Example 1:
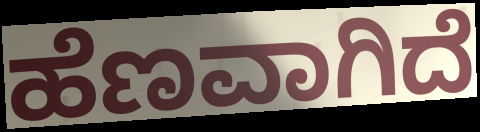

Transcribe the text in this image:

ಹೆಣವಾಗಿದೆ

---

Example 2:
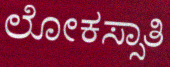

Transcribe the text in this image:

ಲೋಕಸ್ಸಾತಿ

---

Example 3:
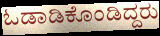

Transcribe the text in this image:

ಓಡಾಡಿಕೊಂಡಿದ್ದರು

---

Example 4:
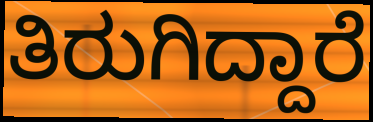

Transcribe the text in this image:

ತಿರುಗಿದ್ದಾರೆ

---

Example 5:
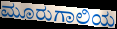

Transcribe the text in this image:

ಮೂರುಗಾಲಿಯ